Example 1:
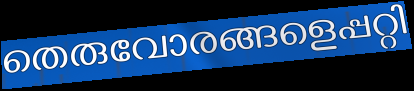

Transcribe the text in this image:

തെരുവോരങ്ങളെപ്പറ്റി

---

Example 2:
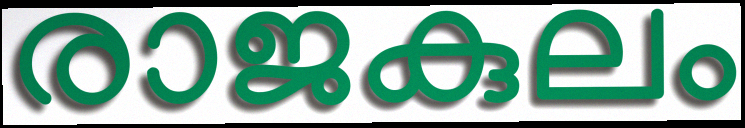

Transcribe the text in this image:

രാജകുലം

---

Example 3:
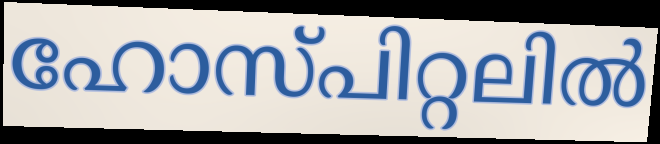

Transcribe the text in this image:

ഹോസ്പിറ്റലിൽ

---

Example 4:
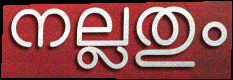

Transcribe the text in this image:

നല്ലതും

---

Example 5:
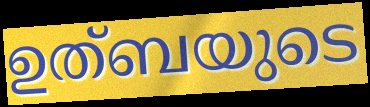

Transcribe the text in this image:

ഉത്ബയുടെ